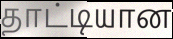
தாட்டியான